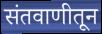
संतवाणीतून